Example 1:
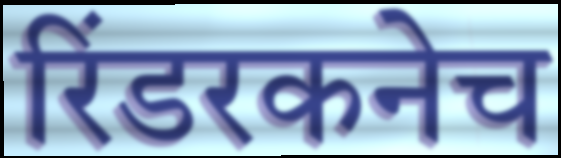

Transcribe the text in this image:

रिंडरकनेच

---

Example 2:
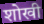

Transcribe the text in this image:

शोखी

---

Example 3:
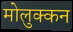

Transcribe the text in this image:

मोलुक्कन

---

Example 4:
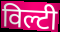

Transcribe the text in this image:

विल्टी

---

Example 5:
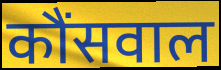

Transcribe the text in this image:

कौंसवाल